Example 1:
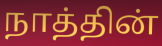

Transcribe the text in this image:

நாத்தின்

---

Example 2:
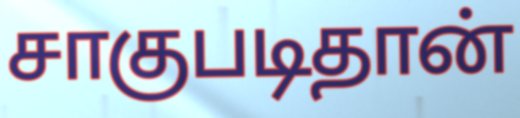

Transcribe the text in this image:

சாகுபடிதான்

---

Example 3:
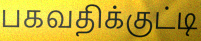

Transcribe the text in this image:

பகவதிக்குட்டி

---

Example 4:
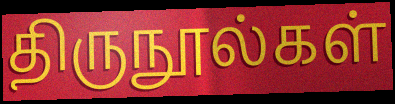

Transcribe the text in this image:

திருநூல்கள்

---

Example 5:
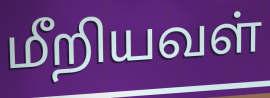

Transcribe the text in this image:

மீறியவள்